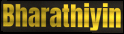
Bharathiyin